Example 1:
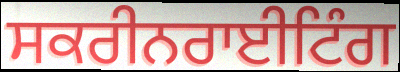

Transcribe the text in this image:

ਸਕਰੀਨਰਾਈਟਿੰਗ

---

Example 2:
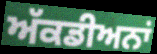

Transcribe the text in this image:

ਅੱਕਡੀਅਨਾਂ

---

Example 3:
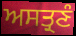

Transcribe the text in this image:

ਅਸਤ੍ਰਣੰ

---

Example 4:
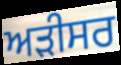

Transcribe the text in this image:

ਅੜੀਸਰ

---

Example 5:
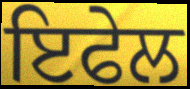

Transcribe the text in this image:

ਇਫੇਲ